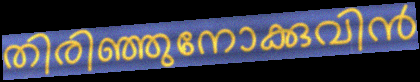
തിരിഞ്ഞുനോക്കുവിൻ